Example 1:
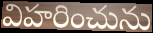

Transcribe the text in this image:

విహరించును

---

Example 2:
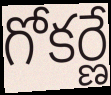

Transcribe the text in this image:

గోకర్ణే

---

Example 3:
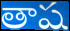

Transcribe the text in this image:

తాష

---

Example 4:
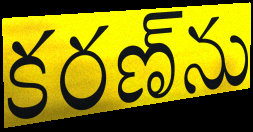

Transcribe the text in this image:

కరణ్‌ను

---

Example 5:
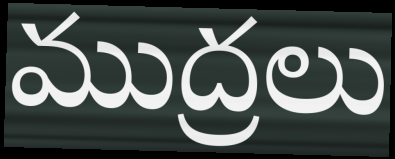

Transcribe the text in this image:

ముద్రలు